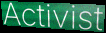
Activist